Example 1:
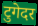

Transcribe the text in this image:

टुगेदर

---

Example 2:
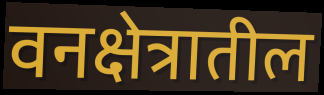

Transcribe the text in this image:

वनक्षेत्रातील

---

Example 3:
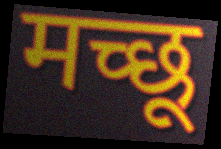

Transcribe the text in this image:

मच्छू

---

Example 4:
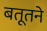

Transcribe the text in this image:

बतूतने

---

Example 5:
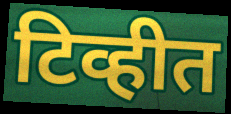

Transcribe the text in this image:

टिव्हीत